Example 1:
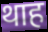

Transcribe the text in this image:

थाह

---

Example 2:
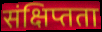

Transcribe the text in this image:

संक्षिप्तता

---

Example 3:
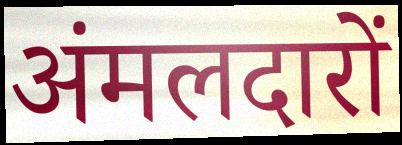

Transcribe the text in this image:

अंमलदारों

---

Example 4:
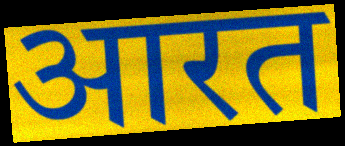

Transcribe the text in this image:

आरत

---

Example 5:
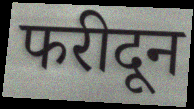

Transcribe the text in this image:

फरीदून